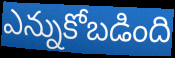
ఎన్నుకోబడింది